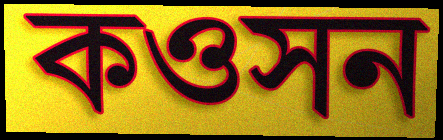
কওসন